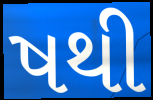
ષથી